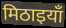
मिठाइयाँ